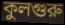
কুলগুরু